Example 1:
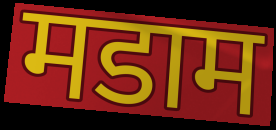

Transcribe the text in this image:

मडाम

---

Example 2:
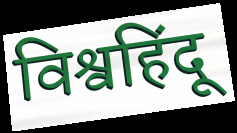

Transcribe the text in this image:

विश्वहिंदू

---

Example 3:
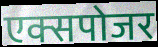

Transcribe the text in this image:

एक्सपोजर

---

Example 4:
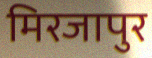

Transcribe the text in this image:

मिरजापुर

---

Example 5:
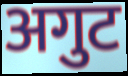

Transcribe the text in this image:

अगुट